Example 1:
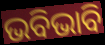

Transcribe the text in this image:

ଭବିଭାବି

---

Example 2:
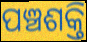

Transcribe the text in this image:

ପଞ୍ଚଶକ୍ତି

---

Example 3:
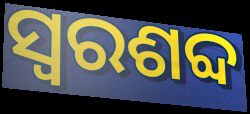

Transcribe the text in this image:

ସ୍ୱରଶବ୍ଦ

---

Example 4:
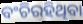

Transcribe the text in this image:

ବଂଚିରହିଥିବା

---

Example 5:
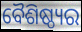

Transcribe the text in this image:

ବୈଶିଷ୍ଠ୍ୟର